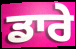
ਡਾਰੇ